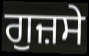
ਗੁਜ਼ਸੇ